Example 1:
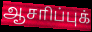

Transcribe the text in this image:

ஆசரிப்புக்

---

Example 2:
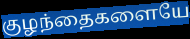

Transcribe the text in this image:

குழந்தைகளையே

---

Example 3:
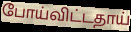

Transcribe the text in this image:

போய்விட்டதாய்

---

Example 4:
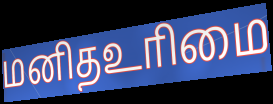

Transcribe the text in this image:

மனிதஉரிமை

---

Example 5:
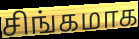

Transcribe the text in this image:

சிங்கமாக